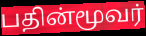
பதின்மூவர்